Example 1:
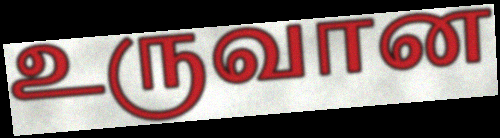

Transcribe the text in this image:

உருவான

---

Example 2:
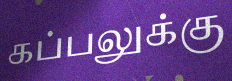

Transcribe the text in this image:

கப்பலுக்கு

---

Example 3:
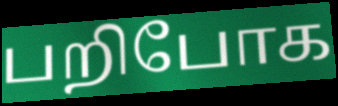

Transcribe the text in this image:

பறிபோக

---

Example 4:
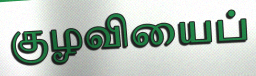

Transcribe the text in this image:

குழவியைப்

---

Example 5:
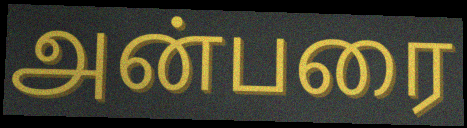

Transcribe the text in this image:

அன்பரை